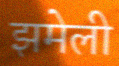
झमेली